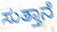
ಸುತ್ತಾನೆ